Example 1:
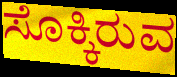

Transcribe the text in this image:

ಸೊಕ್ಕಿರುವ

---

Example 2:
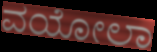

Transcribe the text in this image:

ವಯೋಲಾ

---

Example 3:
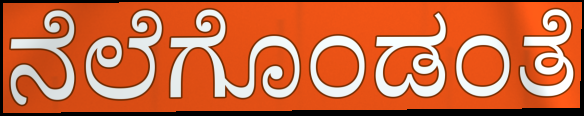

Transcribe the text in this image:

ನೆಲೆಗೊಂಡಂತೆ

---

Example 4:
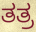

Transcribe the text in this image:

ತತ್ರ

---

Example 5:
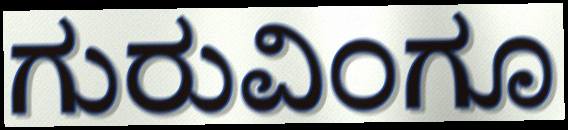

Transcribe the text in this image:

ಗುರುವಿಂಗೂ